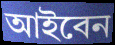
আইবেন